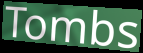
Tombs